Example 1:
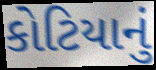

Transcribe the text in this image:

કોટિયાનું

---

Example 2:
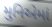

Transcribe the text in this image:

મુનિએમાં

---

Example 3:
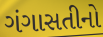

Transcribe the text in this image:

ગંગાસતીનો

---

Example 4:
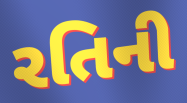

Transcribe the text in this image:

રતિની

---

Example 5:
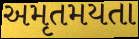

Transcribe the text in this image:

અમૃતમયતા